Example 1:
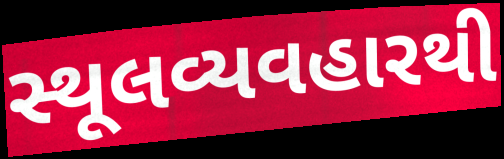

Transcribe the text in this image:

સ્થૂલવ્યવહારથી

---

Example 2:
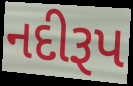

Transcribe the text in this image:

નદીરૂપ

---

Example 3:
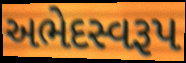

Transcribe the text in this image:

અભેદસ્વરૂપ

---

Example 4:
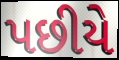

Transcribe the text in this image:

પછીયે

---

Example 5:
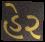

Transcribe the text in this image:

હેર